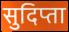
सुदिप्ता